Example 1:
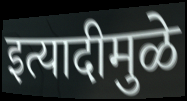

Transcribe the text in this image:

इत्यादीमुळे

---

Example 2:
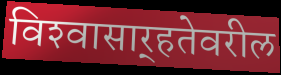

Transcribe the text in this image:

विश्वासार्हतेवरील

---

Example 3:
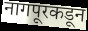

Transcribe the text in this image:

नागपूरकडून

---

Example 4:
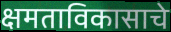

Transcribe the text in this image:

क्षमताविकासाचे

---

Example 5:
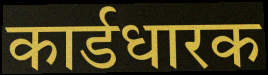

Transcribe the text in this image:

कार्डधारक